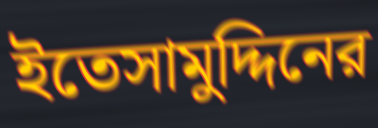
ইতেসামুদ্দিনের